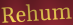
Rehum